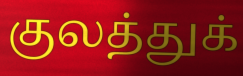
குலத்துக்